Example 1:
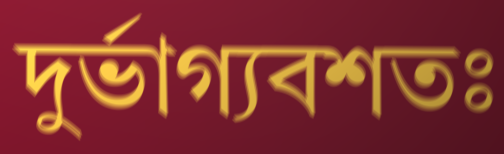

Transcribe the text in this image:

দুৰ্ভাগ্যবশতঃ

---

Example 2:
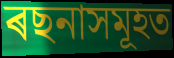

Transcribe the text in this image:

ৰছনাসমূহত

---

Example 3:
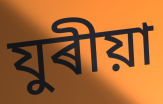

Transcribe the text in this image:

যুৰীয়া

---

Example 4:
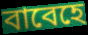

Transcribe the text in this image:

বাবেহে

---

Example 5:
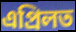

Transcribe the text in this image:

এপ্ৰিলত